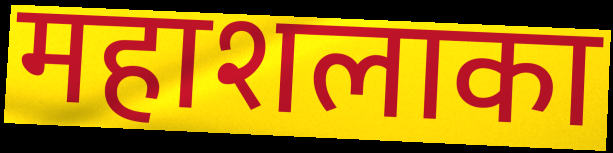
महाशलाका